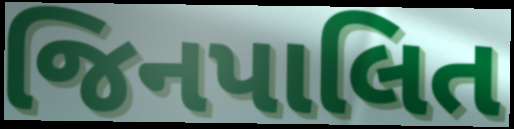
જિનપાલિત